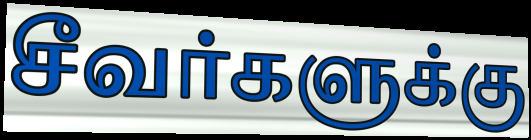
சீவர்களுக்கு